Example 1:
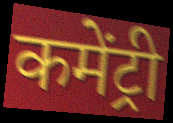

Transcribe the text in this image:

कमेंट्री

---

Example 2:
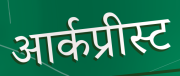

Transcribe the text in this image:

आर्कप्रीस्ट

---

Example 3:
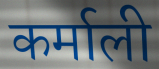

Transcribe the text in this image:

कर्माली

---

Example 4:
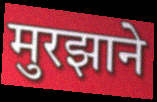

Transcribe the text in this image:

मुरझाने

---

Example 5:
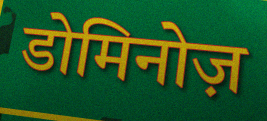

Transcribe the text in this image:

डोमिनोज़